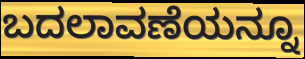
ಬದಲಾವಣೆಯನ್ನೂ